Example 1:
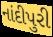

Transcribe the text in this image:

નાંદીપુરી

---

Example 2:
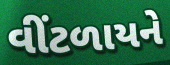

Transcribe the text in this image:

વીંટળાયને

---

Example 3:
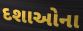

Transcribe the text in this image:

દશાઓના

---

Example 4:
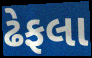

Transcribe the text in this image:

ઢેફલા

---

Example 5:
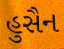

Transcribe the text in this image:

હુસૈન